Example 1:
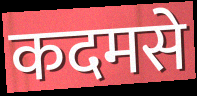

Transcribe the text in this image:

कदमसे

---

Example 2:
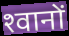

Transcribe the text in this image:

श्वानों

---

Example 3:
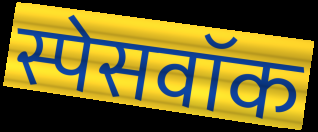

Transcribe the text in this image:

स्पेसवॉक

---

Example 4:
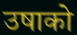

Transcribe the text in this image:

उषाको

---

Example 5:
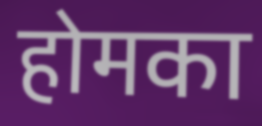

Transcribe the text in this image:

होमका